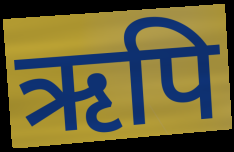
ऋपि